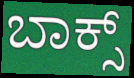
ಬಾಕ್ಸ್